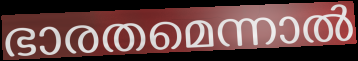
ഭാരതമെന്നാൽ